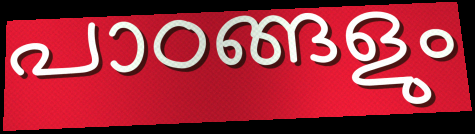
പാഠങ്ങളും